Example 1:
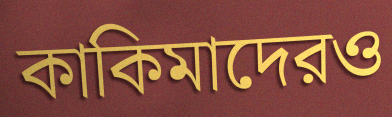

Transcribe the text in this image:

কাকিমাদেরও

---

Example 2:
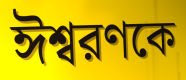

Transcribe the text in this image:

ঈশ্বরণকে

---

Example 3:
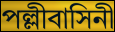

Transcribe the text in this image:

পল্লীবাসিনী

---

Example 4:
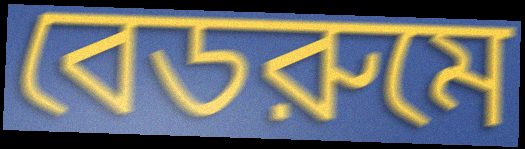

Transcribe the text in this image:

বেডরুমে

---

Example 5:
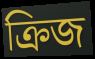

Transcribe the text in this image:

ক্রিজ